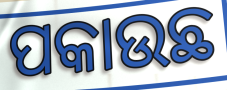
ପକାଉଛ